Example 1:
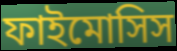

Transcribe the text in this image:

ফাইমোসিস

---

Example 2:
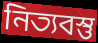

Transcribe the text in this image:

নিত্যবস্তু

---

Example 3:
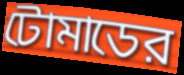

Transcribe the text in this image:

টোমাডের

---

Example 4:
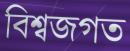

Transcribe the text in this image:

বিশ্বজগত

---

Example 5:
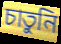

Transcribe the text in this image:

চাতুনি